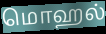
மொஹல்